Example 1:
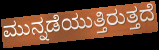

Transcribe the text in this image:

ಮುನ್ನಡೆಯುತ್ತಿರುತ್ತದೆ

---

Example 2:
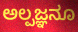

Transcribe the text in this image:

ಅಲ್ಪಜ್ಞನೂ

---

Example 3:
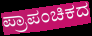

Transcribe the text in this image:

ಪ್ರಾಪಂಚಿಕದ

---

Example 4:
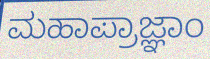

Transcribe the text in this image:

ಮಹಾಪ್ರಾಜ್ಞಾಂ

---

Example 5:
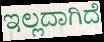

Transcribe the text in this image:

ಇಲ್ಲದಾಗಿದೆ